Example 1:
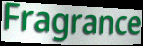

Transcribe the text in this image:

Fragrance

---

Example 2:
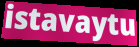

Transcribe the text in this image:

istavaytu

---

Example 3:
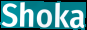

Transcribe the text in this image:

Shoka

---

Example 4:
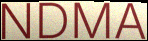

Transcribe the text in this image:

NDMA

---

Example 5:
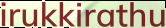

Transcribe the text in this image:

irukkirathu